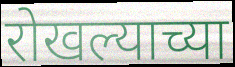
रोखल्याच्या